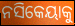
ନସିକେୟାକୁ